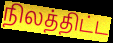
நிலத்திட்ட